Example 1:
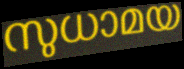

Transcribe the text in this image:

സുധാമയ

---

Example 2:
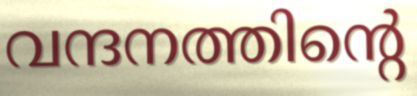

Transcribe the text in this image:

വന്ദനത്തിന്റെ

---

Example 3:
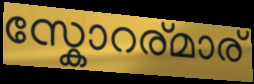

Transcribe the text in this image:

സ്കോറര്മാര്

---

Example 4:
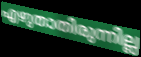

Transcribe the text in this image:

എഴുതാതിരുന്നില്ല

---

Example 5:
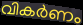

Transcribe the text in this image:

വികർണം